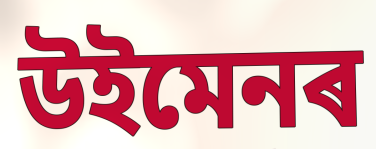
উইমেনৰ